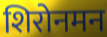
शिरोनमन